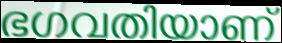
ഭഗവതിയാണ്